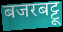
बजरबट्टू